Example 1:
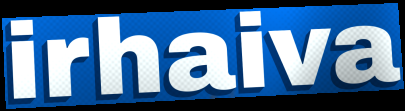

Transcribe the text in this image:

irhaiva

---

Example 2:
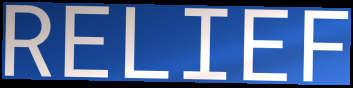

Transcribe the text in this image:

RELIEF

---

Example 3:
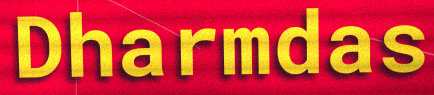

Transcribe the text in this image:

Dharmdas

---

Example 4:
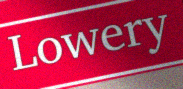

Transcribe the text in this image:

Lowery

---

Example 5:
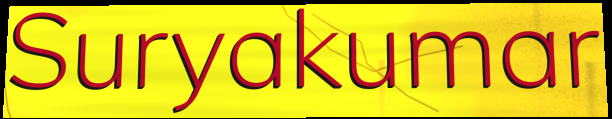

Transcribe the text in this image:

Suryakumar